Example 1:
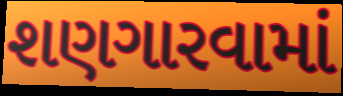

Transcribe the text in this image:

શણગારવામાં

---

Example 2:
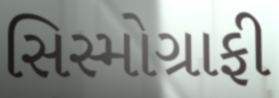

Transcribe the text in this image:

સિસ્મોગ્રાફી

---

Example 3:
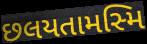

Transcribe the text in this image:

છલયતામસ્મિ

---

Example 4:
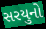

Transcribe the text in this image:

સરયુનો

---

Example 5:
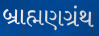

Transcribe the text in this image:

બ્રાહ્મણગ્રંથ